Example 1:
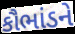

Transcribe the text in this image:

કૌભાંડને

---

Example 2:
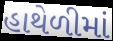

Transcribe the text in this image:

હાથેળીમાં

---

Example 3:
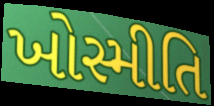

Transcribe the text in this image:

ખોસ્મીતિ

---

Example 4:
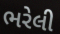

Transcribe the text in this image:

ભરેલી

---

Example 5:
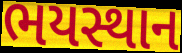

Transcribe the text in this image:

ભયસ્થાન